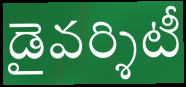
డైవర్శిటీ